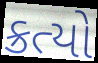
ક્રત્યો